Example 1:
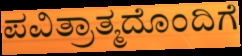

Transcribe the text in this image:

ಪವಿತ್ರಾತ್ಮದೊಂದಿಗೆ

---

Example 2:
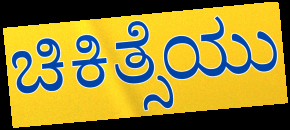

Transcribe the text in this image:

ಚಿಕಿತ್ಸೆಯು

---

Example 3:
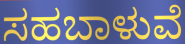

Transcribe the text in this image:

ಸಹಬಾಳುವೆ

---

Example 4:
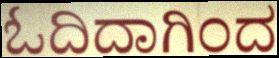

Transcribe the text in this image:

ಓದಿದಾಗಿಂದ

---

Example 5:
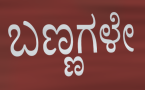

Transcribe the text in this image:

ಬಣ್ಣಗಳೇ